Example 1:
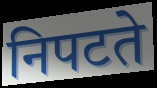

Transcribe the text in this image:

निपटते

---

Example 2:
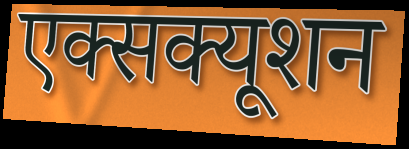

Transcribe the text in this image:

एक्सक्यूशन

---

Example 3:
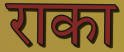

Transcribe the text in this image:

राका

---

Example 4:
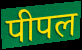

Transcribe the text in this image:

पीपल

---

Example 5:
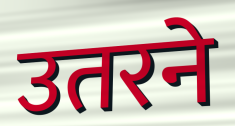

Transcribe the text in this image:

उतरने